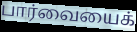
பார்வையைக்